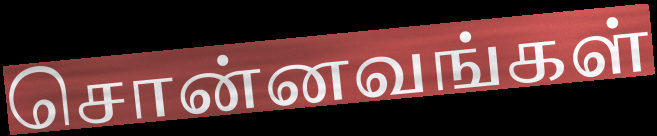
சொன்னவங்கள்